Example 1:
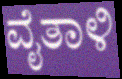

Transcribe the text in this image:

ವೈತಾಳಿ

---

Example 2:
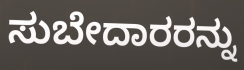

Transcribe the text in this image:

ಸುಬೇದಾರರನ್ನು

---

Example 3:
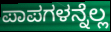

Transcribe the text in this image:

ಪಾಪಗಳನ್ನೆಲ್ಲ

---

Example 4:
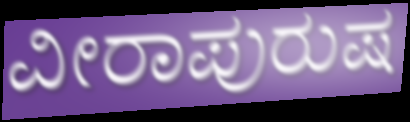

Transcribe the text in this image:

ವೀರಾಪುರುಷ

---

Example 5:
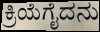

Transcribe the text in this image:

ಕ್ರಿಯೆಗೈದನು